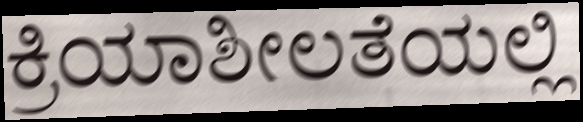
ಕ್ರಿಯಾಶೀಲತೆಯಲ್ಲಿ